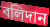
বলিদান